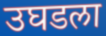
उघडला